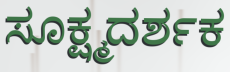
ಸೂಕ್ಷ್ಮದರ್ಶಕ